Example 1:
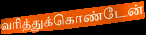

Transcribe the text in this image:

வரித்துக்கொண்டேன்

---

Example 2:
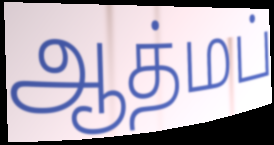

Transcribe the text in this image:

ஆத்மப்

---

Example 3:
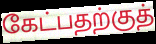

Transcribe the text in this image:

கேட்பதற்குத்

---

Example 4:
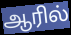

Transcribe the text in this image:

ஆரில்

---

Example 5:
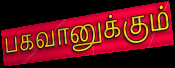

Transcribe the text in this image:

பகவானுக்கும்